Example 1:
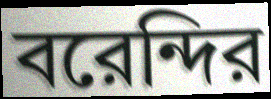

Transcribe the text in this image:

বরেন্দির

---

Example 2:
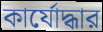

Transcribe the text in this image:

কার্যোদ্ধার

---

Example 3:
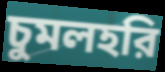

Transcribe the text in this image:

চুমলহরি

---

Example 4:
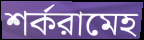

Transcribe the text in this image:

শর্করামেহ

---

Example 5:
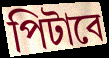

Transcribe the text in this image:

পিটাবে